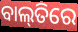
ବାଲ୍‌ତିରେ